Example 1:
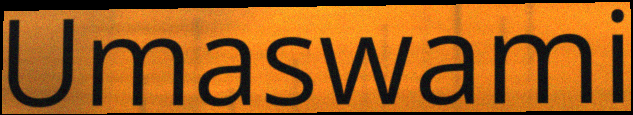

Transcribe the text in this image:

Umaswami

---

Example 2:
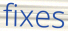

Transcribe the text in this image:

fixes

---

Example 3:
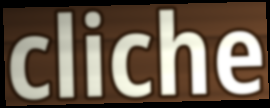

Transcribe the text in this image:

cliche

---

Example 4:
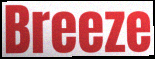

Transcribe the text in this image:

Breeze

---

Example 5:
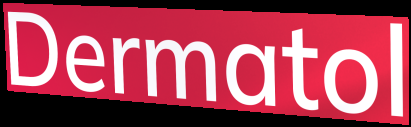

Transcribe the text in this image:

Dermatol